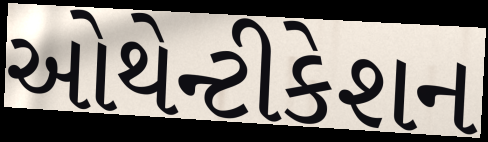
ઓથેન્ટીકેશન